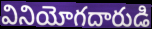
వినియోగదారుడి